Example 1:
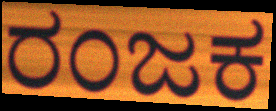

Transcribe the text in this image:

ರಂಜಕ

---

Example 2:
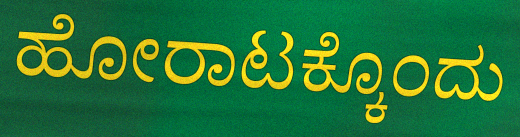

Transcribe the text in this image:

ಹೋರಾಟಕ್ಕೊಂದು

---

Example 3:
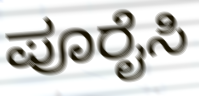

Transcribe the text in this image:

ಪೂರೈಸಿ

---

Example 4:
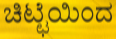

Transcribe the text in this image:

ಚಿಟ್ಟೆಯಿಂದ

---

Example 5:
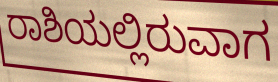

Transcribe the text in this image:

ರಾಶಿಯಲ್ಲಿರುವಾಗ